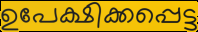
ഉപേക്ഷിക്കപ്പെട്ട